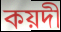
কয়দী